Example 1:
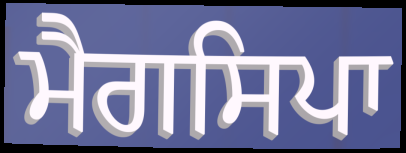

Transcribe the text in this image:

ਮੈਗਸਿਪਾ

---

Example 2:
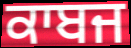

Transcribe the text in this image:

ਕਾਬਜ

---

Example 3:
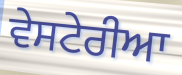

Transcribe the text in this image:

ਵੇਸਟੇਰੀਆ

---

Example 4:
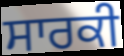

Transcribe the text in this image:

ਸਾਰਕੀ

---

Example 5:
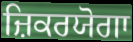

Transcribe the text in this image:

ਜ਼ਿਕਰਯੋਗਾ